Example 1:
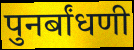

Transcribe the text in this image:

पुनर्बांधणी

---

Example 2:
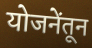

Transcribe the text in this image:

योजनेंतून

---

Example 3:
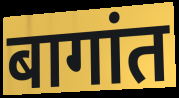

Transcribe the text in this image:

बागांत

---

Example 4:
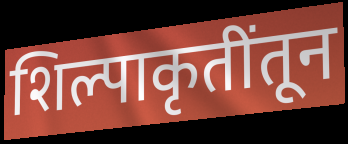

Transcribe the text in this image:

शिल्पाकृतींतून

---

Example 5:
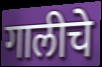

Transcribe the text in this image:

गालीचे